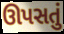
ઊપસતું